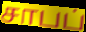
சாபப்